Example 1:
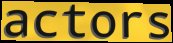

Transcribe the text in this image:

actors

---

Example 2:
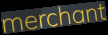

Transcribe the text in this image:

merchant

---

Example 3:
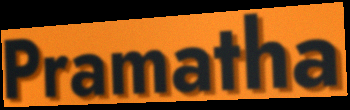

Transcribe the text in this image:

Pramatha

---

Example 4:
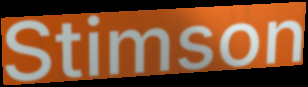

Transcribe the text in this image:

Stimson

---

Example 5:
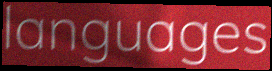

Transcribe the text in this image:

languages